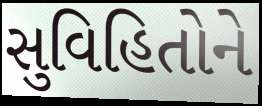
સુવિહિતોને